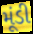
મૂંડી